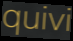
quivi